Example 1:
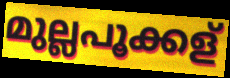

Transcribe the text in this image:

മുല്ലപൂക്കള്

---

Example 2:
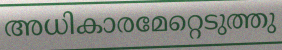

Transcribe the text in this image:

അധികാരമേറ്റെടുത്തു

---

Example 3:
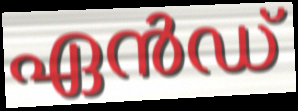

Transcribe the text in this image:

ഏൻഡ്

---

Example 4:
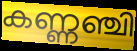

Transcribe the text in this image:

കണ്ണഞ്ചി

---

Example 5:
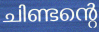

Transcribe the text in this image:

ചിണ്ടന്റെ